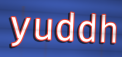
yuddh